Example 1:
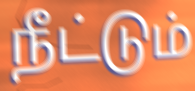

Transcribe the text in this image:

நீட்டும்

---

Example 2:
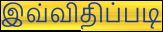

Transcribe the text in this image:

இவ்விதிப்படி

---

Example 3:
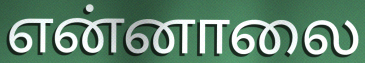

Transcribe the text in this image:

என்னாலை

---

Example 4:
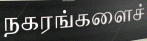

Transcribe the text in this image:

நகரங்களைச்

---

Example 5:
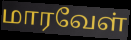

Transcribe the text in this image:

மாரவேள்